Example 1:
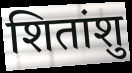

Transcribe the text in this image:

शितांशु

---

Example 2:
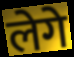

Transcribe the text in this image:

लेगे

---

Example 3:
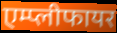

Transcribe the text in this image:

एम्प्लीफायर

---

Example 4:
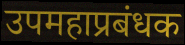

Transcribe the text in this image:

उपमहाप्रबंधक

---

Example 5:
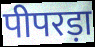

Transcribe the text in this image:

पीपरड़ा